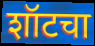
शॉटचा